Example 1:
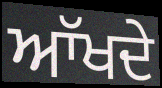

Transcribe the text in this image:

ਆੱਖਦੇ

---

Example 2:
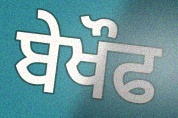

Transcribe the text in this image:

ਬੇਖੌਫ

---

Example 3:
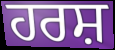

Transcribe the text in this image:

ਹਰਸ਼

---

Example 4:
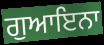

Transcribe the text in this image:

ਗੁਆਇਨਾ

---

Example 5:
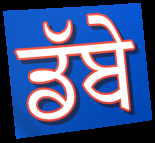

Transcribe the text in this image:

ਡੱਬੇ